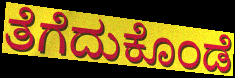
ತೆಗೆದುಕೊಂಡೆ